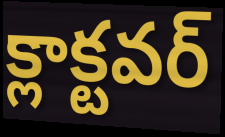
క్లాక్టవర్